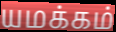
யமக்கம்